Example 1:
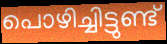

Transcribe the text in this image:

പൊഴിച്ചിട്ടുണ്ട്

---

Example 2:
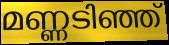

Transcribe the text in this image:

മണ്ണടിഞ്ഞ്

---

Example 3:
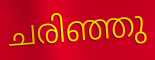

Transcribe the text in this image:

ചരിഞ്ഞു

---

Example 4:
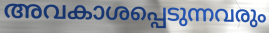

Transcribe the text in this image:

അവകാശപ്പെടുന്നവരും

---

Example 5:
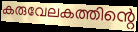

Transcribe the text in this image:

കരുവേലകത്തിന്റെ